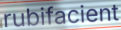
rubifacient